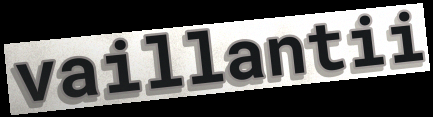
vaillantii